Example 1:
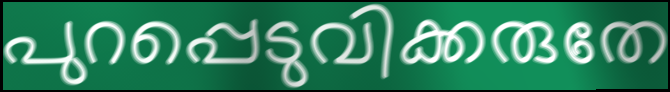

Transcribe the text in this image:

പുറപ്പെടുവിക്കരുതേ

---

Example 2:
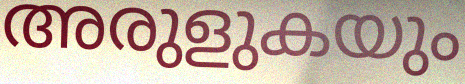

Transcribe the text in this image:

അരുളുകയും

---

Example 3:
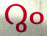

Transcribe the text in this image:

റും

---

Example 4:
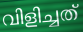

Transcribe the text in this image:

വിളിച്ചത്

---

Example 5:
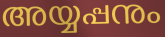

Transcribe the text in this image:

അയ്യപ്പനും